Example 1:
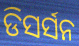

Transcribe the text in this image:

ଡିସର୍ସନ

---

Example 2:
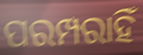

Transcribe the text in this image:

ପରମ୍ପରାହିଁ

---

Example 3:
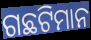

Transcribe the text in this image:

ଗଛଟିମାନ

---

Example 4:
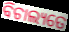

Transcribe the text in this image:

ବିଚାଲ୍ୟତେ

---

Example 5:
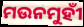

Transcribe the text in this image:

ମଉନମୁହୀଁ